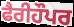
ਫੈਰੀਹੌਪਰ